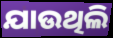
ଯାଉଥିଲି